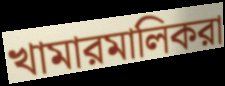
খামারমালিকরা